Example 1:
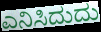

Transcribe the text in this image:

ಎನಿಸಿದುದು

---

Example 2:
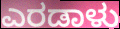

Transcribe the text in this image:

ಎರಡಾಳು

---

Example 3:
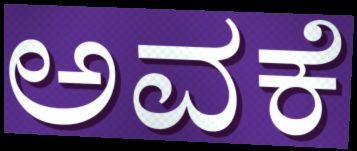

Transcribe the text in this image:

ಅವಕೆ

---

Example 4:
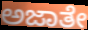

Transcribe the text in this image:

ಅಜಾತೇ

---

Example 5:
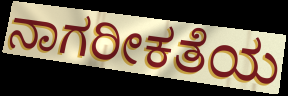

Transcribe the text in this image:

ನಾಗರೀಕತೆಯ